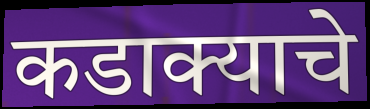
कडाक्याचे